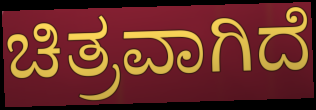
ಚಿತ್ರವಾಗಿದೆ